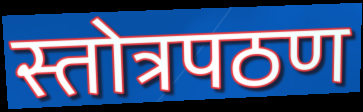
स्तोत्रपठण